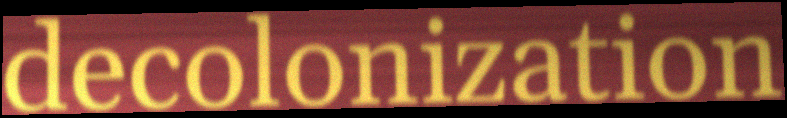
decolonization